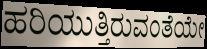
ಹರಿಯುತ್ತಿರುವಂತೆಯೇ